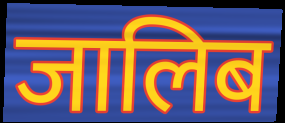
जालिब